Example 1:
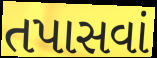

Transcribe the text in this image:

તપાસવાં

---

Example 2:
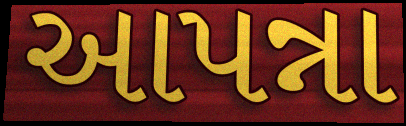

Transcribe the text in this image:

આપન્ના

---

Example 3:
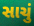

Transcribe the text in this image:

સાચું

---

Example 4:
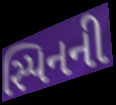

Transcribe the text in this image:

સ્પિનની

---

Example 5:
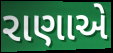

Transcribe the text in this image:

રાણાએ